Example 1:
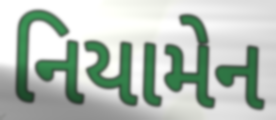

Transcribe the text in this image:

નિયામેન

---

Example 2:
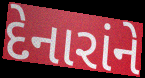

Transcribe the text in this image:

દેનારાંને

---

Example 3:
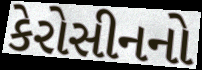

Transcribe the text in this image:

કેરોસીનનો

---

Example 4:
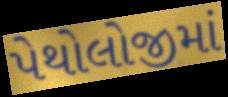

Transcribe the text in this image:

પેથોલોજીમાં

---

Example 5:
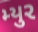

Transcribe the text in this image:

મ્યુર